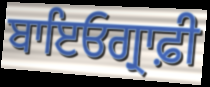
ਬਾਇਓਗ੍ਰਾਫ਼ੀ